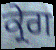
ਕ੍ਰੇਗ